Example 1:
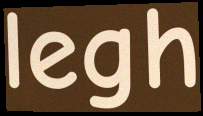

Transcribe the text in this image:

legh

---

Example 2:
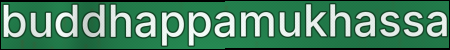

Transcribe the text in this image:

buddhappamukhassa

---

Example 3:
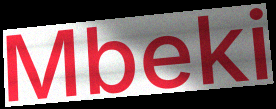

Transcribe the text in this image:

Mbeki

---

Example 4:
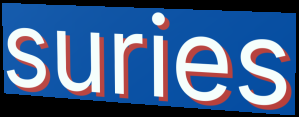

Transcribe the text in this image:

suries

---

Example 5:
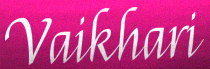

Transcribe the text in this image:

Vaikhari